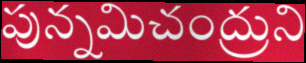
పున్నమిచంద్రుని